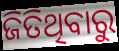
ଜିତିଥିବାରୁ